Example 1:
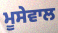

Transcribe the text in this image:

ਮੂਸੇਵਾਲ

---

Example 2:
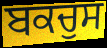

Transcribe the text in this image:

ਬਕਚੁਸ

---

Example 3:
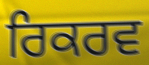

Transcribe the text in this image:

ਰਿਕਰਵ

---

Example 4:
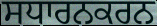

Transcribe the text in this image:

ਸਧਾਰਨਕਰਨ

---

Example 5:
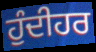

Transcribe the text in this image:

ਹੁੰਦੀਹਰ